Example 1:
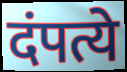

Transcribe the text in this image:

दंपत्ये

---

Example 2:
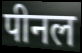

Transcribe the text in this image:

पीनल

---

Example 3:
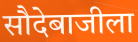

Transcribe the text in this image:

सौदेबाजीला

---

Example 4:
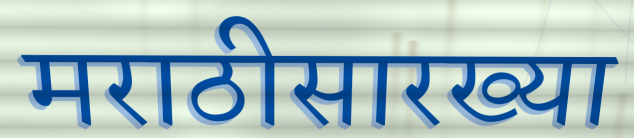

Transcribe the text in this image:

मराठीसारख्या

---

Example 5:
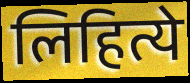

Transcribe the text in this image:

लिहित्ये